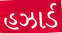
હઝાર્ડ